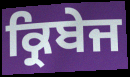
ਕ੍ਰਿਬੇਜ